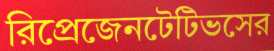
রিপ্রেজেনটেটিভসের